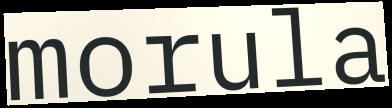
morula